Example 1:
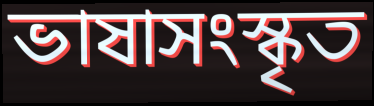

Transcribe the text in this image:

ভাষাসংস্কৃত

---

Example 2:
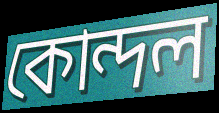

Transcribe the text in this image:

কোন্দল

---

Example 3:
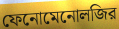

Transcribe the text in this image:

ফেনোমেনোলজির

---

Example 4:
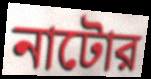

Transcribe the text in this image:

নাটোর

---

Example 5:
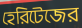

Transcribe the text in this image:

হেরিটেজের